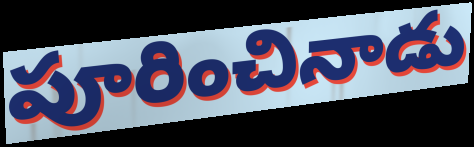
పూరించినాడు